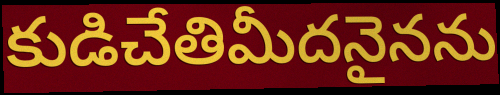
కుడిచేతిమీదనైనను